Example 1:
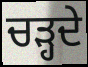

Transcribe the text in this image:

ਚਡ਼੍ਹਦੇ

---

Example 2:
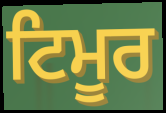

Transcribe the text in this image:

ਟਿਮੂਰ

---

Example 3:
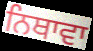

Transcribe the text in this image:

ਨਿਥਾਵਾ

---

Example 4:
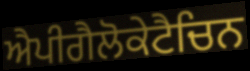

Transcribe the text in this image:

ਐਪੀਗੈਲੋਕੇਟੈਚਿਨ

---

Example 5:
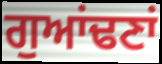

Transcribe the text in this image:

ਗੁਆਂਢਣਾਂ